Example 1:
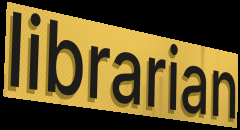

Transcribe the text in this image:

librarian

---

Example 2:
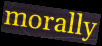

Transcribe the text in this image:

morally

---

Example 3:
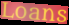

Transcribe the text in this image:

Loans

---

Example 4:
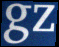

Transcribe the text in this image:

gz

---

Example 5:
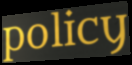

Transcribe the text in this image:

policy